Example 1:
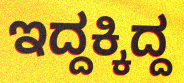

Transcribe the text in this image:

ಇದ್ದಕ್ಕಿದ್ದ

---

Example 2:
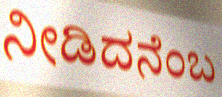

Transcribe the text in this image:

ನೀಡಿದನೆಂಬ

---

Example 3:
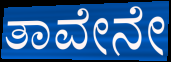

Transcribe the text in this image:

ತಾವೇನೇ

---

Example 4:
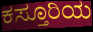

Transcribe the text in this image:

ಕಸ್ತೂರಿಯ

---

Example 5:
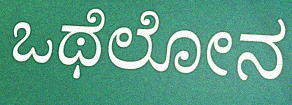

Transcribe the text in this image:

ಒಥೆಲೋನ